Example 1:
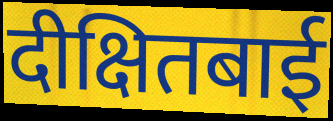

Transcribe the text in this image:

दीक्षितबाई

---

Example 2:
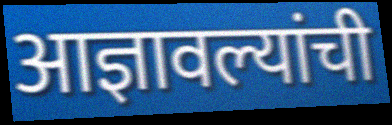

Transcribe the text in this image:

आज्ञावल्यांची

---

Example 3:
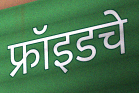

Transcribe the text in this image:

फ्रॉइडचे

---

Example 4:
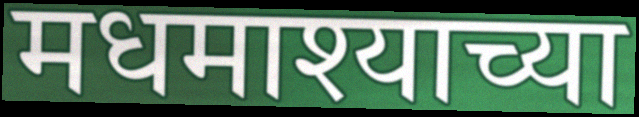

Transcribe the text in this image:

मधमाश्याच्या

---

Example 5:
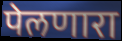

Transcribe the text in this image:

पेलणारा